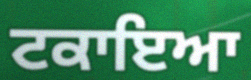
ਟਕਾਇਆ